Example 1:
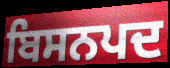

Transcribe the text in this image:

ਬਿਸਨਪਦ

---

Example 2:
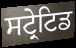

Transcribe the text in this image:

ਸਟ੍ਰੇਟਿਡ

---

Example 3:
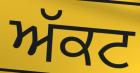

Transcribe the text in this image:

ਅੱਕਟ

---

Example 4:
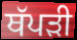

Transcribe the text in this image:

ਥੱਪੜੀ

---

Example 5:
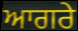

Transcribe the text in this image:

ਆਗਰੇ